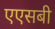
एएसबी